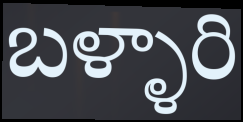
బళ్ళారి